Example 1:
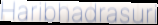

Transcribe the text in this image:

Haribhadrasuri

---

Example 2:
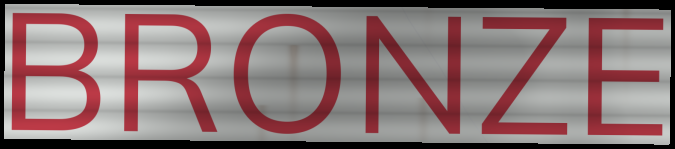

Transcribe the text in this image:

BRONZE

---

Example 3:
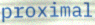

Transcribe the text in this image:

proximal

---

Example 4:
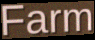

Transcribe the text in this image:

Farm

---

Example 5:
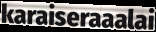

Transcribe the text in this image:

karaiseraaalai